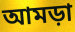
আমড়া